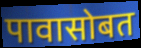
पावासोबत